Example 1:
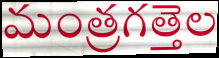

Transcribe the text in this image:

మంత్రగత్తెల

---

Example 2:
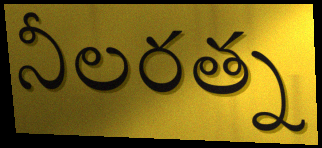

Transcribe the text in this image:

నీలరత్న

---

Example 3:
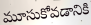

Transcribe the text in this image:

మూసుకోవడానికి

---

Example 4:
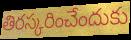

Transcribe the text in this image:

తిరస్కరించేందుకు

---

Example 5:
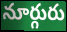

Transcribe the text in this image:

నూర్గురు